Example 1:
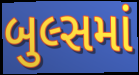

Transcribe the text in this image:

બુલ્સમાં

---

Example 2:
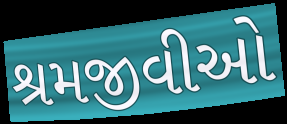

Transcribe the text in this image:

શ્રમજીવીઓ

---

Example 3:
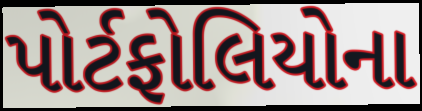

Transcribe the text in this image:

પોર્ટફોલિયોના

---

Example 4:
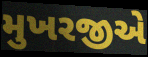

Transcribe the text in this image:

મુખરજીએ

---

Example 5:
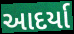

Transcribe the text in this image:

આદર્યા